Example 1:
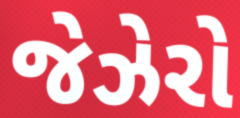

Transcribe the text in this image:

જેઝેરો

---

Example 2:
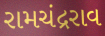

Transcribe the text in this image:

રામચંદ્રરાવ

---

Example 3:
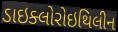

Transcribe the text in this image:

ડાઇક્લોરોઇથિલીન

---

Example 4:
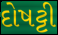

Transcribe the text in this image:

દોષટ્ટી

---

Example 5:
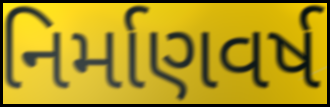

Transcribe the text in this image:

નિર્માણવર્ષ